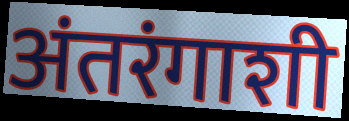
अंतरंगाशी